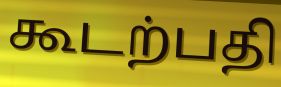
கூடற்பதி